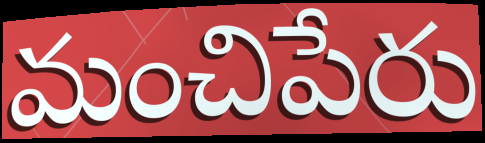
మంచిపేరు